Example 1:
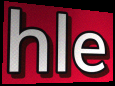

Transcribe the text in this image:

hle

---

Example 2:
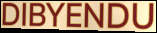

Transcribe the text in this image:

DIBYENDU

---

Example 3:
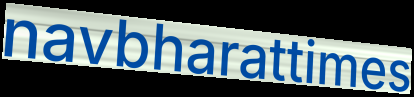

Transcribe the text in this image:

navbharattimes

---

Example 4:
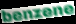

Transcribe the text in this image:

benzene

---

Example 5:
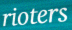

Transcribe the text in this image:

rioters